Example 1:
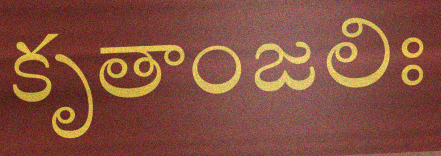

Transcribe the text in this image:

కృతాంజలిః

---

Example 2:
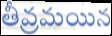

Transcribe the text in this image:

తీవ్రమయిన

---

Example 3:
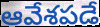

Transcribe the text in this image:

ఆవేశపడే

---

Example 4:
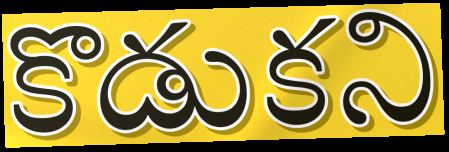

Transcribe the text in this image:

కొడుకని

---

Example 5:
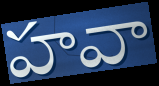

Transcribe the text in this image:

హవా